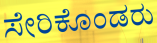
ಸೇರಿಕೊಂಡರು